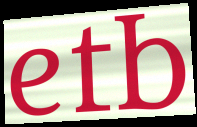
etb